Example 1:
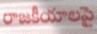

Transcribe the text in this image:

రాజకీయాలపై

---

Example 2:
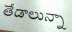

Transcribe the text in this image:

తేడాలున్నా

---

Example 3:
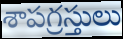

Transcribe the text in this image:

శాపగ్రస్తులు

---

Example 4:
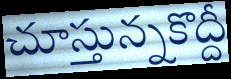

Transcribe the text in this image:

చూస్తున్నకొద్దీ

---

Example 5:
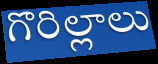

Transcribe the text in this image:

గొరిల్లాలు